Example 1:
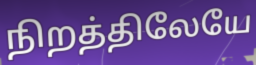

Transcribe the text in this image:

நிறத்திலேயே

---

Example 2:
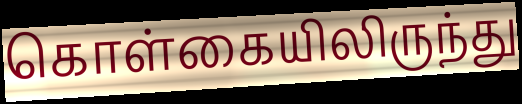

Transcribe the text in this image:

கொள்கையிலிருந்து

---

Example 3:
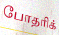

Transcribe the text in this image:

போதரிக்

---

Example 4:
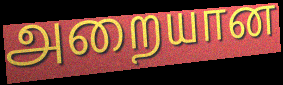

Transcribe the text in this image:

அறையான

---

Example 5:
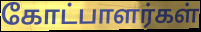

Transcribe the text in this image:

கோட்பாளர்கள்